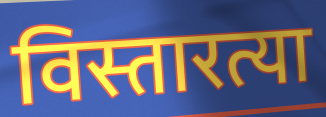
विस्तारत्या